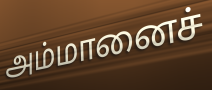
அம்மானைச்